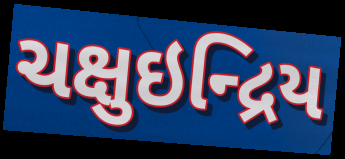
ચક્ષુઇન્દ્રિય